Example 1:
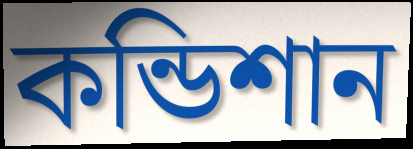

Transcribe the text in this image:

কন্ডিশান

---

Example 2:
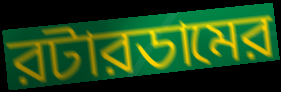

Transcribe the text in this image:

রটারডামের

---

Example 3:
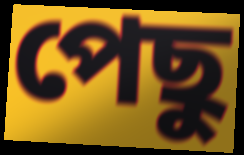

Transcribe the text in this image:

পেছু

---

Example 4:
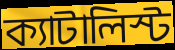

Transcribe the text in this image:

ক্যাটালিস্ট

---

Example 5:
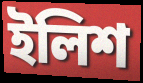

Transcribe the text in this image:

ইলিশ